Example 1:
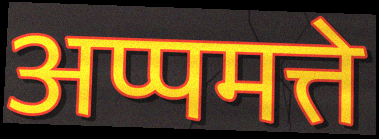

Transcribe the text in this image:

अप्पमत्ते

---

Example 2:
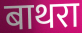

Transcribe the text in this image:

बाथरा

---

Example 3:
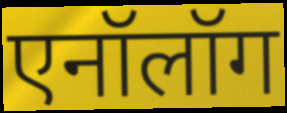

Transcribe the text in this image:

एनॉलॉग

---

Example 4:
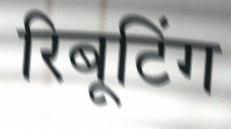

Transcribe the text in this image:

रिबूटिंग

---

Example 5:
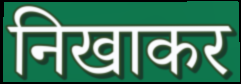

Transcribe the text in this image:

निखाकर